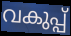
വകുപ്പ്